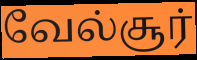
வேல்சூர்